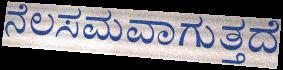
ನೆಲಸಮವಾಗುತ್ತದೆ